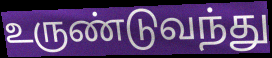
உருண்டுவந்து